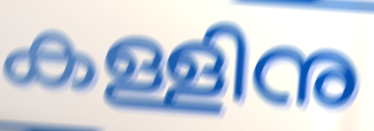
കള്ളിനു